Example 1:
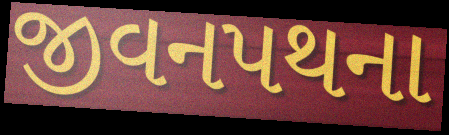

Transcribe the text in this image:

જીવનપથના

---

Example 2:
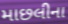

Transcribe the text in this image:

માછલીના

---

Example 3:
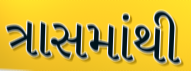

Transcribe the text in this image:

ત્રાસમાંથી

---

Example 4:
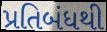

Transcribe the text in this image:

પ્રતિબંધથી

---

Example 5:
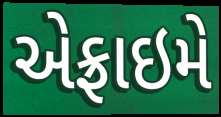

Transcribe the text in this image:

એફ્રાઇમે